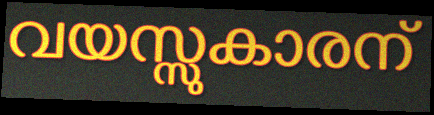
വയസ്സുകാരന്